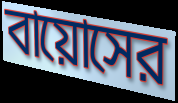
বায়োসের